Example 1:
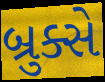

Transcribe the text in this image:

બ્રુક્સે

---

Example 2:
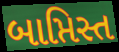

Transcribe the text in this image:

બાપ્તિસ્ત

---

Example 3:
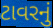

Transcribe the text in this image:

ટાવરનું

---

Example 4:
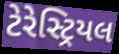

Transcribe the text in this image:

ટેરેસ્ટ્રિયલ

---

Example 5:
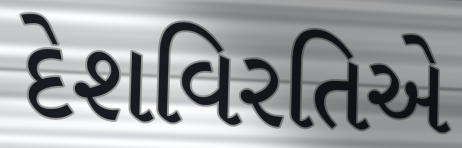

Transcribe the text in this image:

દેશવિરતિએ